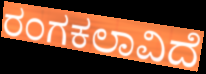
ರಂಗಕಲಾವಿದೆ